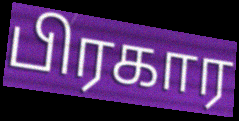
பிரகார